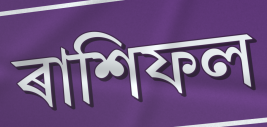
ৰাশিফল